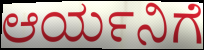
ಆರ್ಯನಿಗೆ